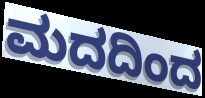
ಮದದಿಂದ